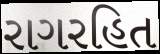
રાગરહિત